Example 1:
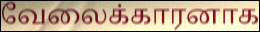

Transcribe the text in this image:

வேலைக்காரனாக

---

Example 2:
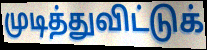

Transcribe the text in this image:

முடித்துவிட்டுக்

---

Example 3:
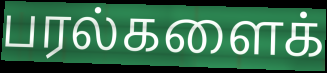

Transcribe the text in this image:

பரல்களைக்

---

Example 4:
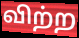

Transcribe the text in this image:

விற்ற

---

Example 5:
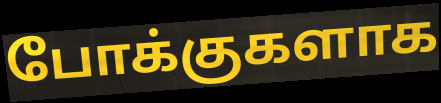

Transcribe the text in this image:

போக்குகளாக